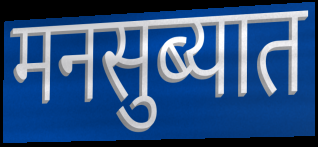
मनसुब्यात